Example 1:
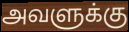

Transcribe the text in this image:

அவளுக்கு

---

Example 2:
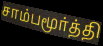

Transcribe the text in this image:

சாம்பமூர்த்தி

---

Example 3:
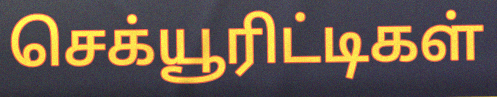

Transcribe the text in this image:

செக்யூரிட்டிகள்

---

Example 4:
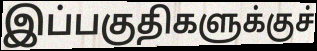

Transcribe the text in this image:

இப்பகுதிகளுக்குச்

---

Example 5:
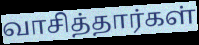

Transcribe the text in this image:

வாசித்தார்கள்